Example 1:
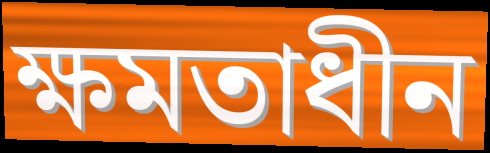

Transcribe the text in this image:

ক্ষমতাধীন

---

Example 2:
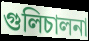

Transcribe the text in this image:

গুলিচালনা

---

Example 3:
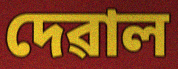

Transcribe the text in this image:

দেৱাল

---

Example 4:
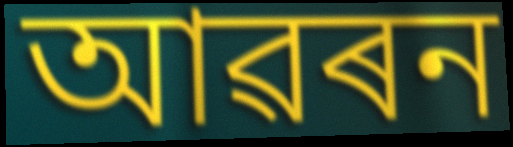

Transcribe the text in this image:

আৱৰন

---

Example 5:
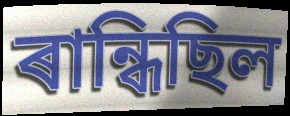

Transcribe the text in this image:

ৰান্ধিছিল